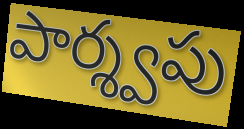
పార్శ్వపు